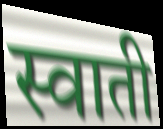
स्वाती